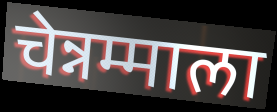
चेन्नम्माला